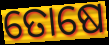
ତୋଷେ